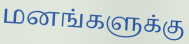
மனங்களுக்கு